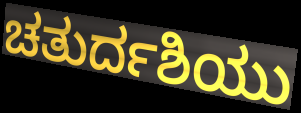
ಚತುರ್ದಶಿಯು